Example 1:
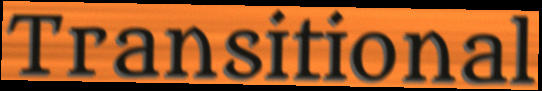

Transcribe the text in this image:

Transitional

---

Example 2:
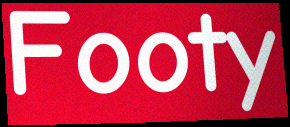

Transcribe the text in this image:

Footy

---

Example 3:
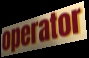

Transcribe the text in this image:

operator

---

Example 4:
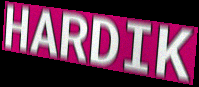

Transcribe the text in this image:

HARDIK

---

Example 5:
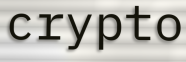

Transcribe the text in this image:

crypto